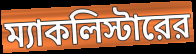
ম্যাকলিস্টারের